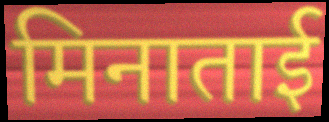
मिनाताई